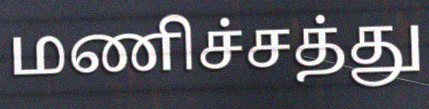
மணிச்சத்து